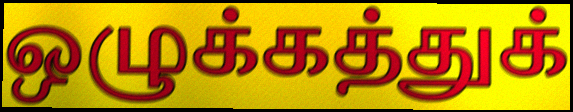
ஒழுக்கத்துக்